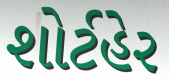
શોર્ટહેર